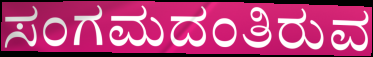
ಸಂಗಮದಂತಿರುವ